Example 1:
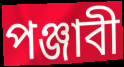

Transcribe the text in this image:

পঞ্জাবী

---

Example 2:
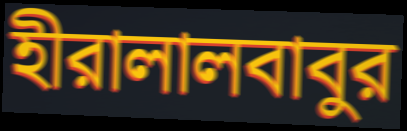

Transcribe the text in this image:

হীরালালবাবুর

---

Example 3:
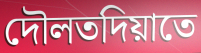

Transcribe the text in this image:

দৌলতদিয়াতে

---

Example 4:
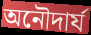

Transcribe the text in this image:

অনৌদার্য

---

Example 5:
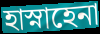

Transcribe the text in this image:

হাস্নাহেনা